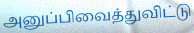
அனுப்பிவைத்துவிட்டு